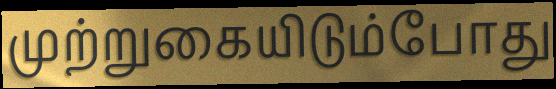
முற்றுகையிடும்போது